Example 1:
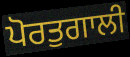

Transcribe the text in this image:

ਪੋਰਤੁਗਾਲੀ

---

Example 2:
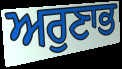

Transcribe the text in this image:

ਅਰੁਣਾਭ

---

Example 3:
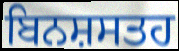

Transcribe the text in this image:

ਬਿਨਸ਼ਸਤਹ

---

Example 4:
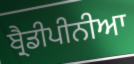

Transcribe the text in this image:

ਬ੍ਰੈਡੀਪੀਨੀਆ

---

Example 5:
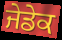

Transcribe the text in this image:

ਜੇਡੇਕ